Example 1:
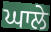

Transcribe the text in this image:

ਘਾਲੇ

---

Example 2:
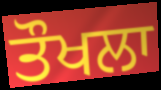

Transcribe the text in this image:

ਤੌਖਲਾ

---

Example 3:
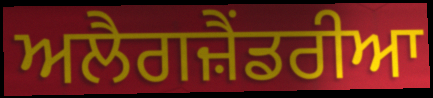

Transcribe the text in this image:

ਅਲੈਗਜ਼ੈਂਡਰੀਆ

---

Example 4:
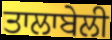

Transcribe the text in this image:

ਤਾਲਾਬੇਲੀ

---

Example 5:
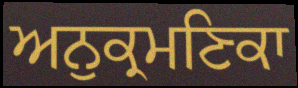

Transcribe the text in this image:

ਅਨੁਕ੍ਰਮਣਿਕਾ